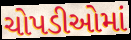
ચોપડીઓમાં